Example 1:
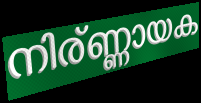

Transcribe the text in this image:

നിര്ണ്ണായക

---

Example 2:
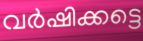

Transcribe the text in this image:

വർഷിക്കട്ടെ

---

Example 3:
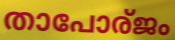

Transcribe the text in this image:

താപോര്ജം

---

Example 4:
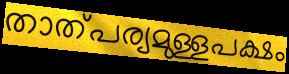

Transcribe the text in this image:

താത്പര്യമുള്ളപക്ഷം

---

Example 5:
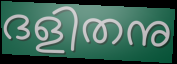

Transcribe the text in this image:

ദളിതനു